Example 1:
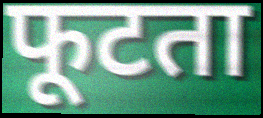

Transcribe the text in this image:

फूटता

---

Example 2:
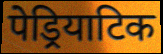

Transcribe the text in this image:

पेड्रियाटिक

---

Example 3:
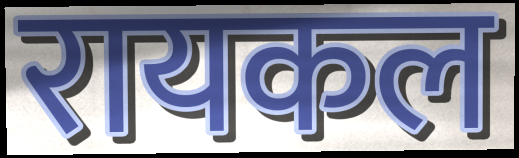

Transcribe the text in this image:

रायकल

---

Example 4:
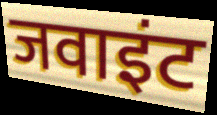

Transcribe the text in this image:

जवाइंट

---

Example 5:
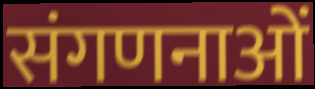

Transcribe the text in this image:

संगणनाओं